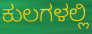
ಕುಲಗಳಲ್ಲಿ